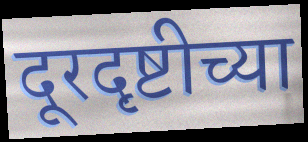
दूरदृष्टीच्या